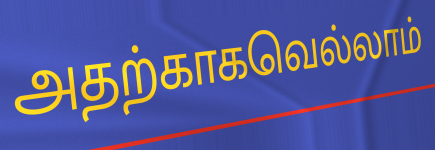
அதற்காகவெல்லாம்